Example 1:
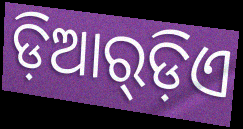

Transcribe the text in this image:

ଡ଼ିଆର୍‌ଡ଼ିଏ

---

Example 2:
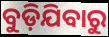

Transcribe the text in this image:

ବୁଡ଼ିଯିବାରୁ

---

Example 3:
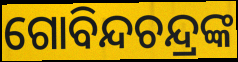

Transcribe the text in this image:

ଗୋବିନ୍ଦଚନ୍ଦ୍ରଙ୍କ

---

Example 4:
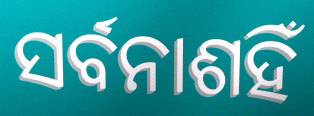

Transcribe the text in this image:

ସର୍ବନାଶହିଁ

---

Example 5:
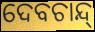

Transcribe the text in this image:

ଦେବଚାନ୍ଦ୍